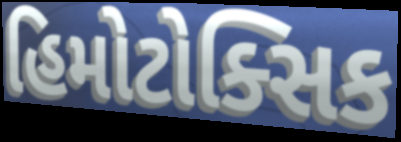
હિમોટોક્સિક